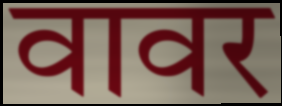
वावर